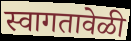
स्वागतावेळी